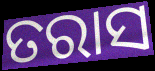
ତରାସ